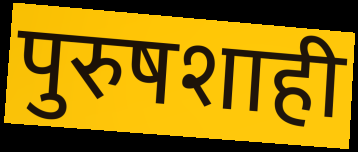
पुरुषशाही